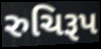
રુચિરૂપ